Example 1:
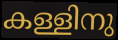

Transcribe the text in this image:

കള്ളിനു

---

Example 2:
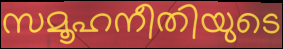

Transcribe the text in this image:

സമൂഹനീതിയുടെ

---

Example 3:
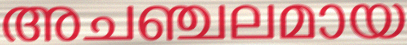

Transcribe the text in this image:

അചഞ്ചലമായ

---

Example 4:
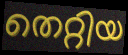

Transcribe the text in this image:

തെറ്റിയ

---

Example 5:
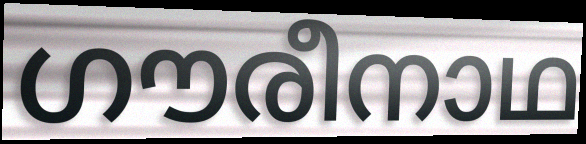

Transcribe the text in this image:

ഗൗരീനാഥ